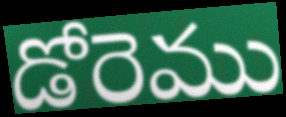
డోరెము